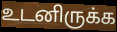
உடனிருக்க